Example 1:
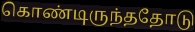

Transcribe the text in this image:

கொண்டிருந்ததோடு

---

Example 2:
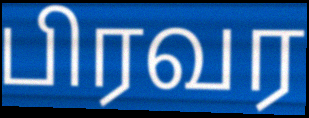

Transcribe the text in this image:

பிரவர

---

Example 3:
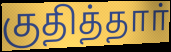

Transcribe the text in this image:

குதித்தார்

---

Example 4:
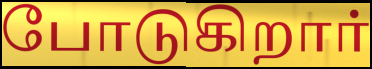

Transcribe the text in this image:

போடுகிறார்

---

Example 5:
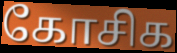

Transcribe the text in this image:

கோசிக